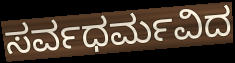
ಸರ್ವಧರ್ಮವಿದ